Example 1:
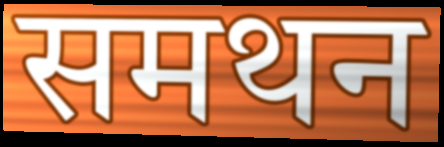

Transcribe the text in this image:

समथन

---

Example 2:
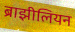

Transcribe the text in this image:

ब्राझीलियन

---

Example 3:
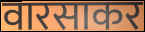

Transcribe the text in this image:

वारसाकर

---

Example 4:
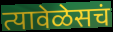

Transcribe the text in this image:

त्यावेळेसचं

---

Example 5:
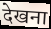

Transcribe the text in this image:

देखना